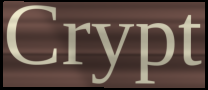
Crypt